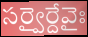
సర్వైర్దేవైః